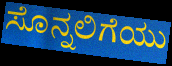
ಸೊನ್ನಲಿಗೆಯು